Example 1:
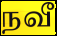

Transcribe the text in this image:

நவீ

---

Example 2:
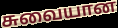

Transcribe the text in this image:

சுவையான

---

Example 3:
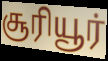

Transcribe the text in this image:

சூரியூர்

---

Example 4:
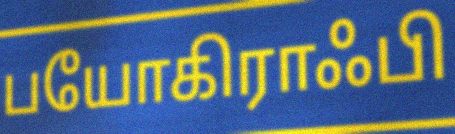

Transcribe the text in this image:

பயோகிராஃபி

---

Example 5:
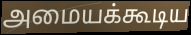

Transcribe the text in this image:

அமையக்கூடிய